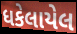
ધકેલાયેલ